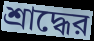
শ্রাদ্ধের